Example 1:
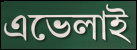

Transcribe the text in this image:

এভেলাই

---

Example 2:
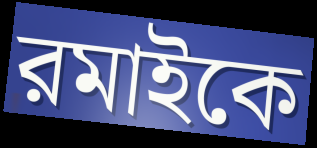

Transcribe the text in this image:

রমাইকে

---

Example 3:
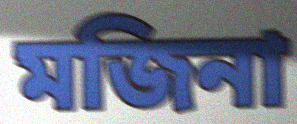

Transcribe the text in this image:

মজিনা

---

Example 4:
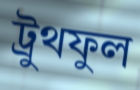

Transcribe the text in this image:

ট্রুথফুল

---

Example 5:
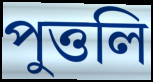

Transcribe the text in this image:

পুত্তলি